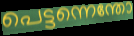
പെട്ടന്നെന്തോ